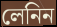
লেনিন